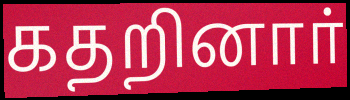
கதறினார்